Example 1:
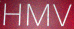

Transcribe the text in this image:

HMV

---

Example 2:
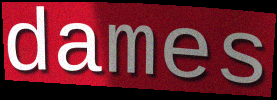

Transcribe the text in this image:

dames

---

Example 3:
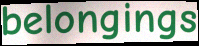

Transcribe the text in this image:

belongings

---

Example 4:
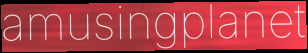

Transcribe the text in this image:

amusingplanet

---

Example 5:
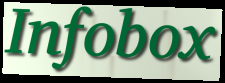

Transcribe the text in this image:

Infobox